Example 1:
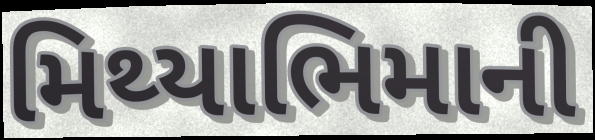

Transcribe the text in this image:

મિથ્યાભિમાની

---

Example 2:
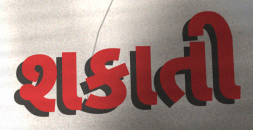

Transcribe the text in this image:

શકાતી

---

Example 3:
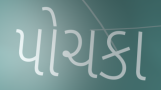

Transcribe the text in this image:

પોચકા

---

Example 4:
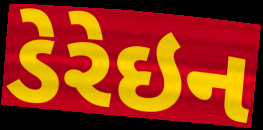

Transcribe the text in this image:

ડેરેઇન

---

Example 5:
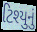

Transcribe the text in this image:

ટિશ્યુનું